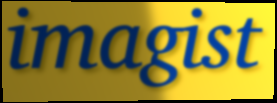
imagist